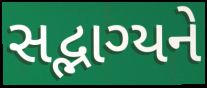
સદ્ભાગ્યને